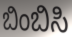
ಬಿಂಬಿಸಿ